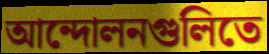
আন্দোলনগুলিতে